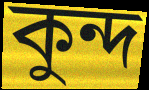
কুন্দ